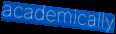
academically